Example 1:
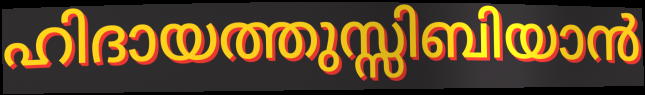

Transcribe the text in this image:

ഹിദായത്തുസ്സിബിയാൻ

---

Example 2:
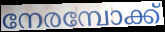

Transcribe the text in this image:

നേരമ്പോക്ക്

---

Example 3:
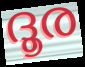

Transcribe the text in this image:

ദൂര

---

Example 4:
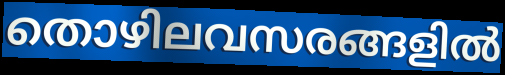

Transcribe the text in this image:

തൊഴിലവസരങ്ങളിൽ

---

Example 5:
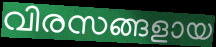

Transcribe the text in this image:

വിരസങ്ങളായ